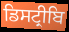
ਡਿਸਟ੍ਰੀਬਿ